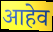
आहेव